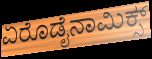
ಏರೊಡೈನಾಮಿಕ್ಸ್